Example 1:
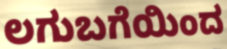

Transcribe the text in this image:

ಲಗುಬಗೆಯಿಂದ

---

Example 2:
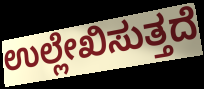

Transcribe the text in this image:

ಉಲ್ಲೇಖಿಸುತ್ತದೆ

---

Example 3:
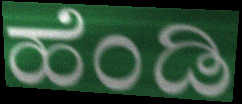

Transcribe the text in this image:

ಹೆಂಡಿ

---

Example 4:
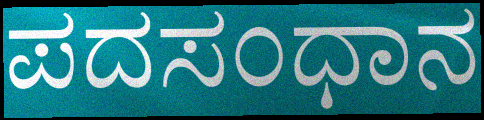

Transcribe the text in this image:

ಪದಸಂಧಾನ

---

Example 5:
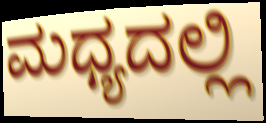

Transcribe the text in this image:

ಮಧ್ಯದಲ್ಲಿ